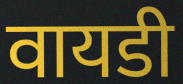
वायडी